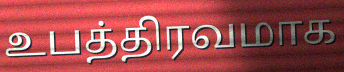
உபத்திரவமாக